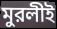
মুরলীই